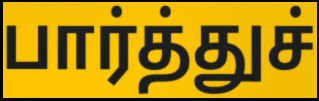
பார்த்துச்